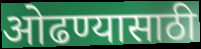
ओढण्यासाठी